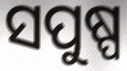
ସପୁଷ୍ପ